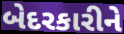
બેદરકારીને